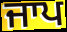
ਜਾਪ